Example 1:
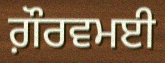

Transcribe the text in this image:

ਗ਼ੌਰਵਮਈ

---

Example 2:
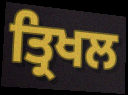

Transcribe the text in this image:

ਤ੍ਰਿਖਲ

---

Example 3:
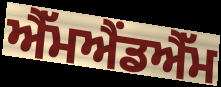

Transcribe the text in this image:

ਐੱਮਐਂਡਐੱਮ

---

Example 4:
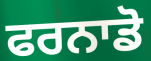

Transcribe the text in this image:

ਫਰਨਾਡੋ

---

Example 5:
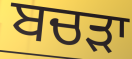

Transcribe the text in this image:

ਬਚੜਾ